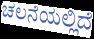
ಚಲನೆಯಲ್ಲಿದೆ